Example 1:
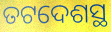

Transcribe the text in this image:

ତଟଦେଶସ୍ଥ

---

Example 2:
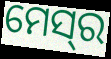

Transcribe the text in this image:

ମେସ୍‍ର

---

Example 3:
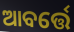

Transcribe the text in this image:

ଆବର୍ତ୍ତେ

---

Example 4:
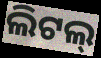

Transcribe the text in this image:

ଲିଟଲ୍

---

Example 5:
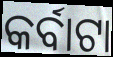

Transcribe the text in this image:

କର୍ବାଟା